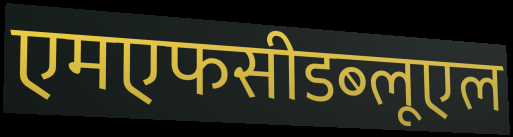
एमएफसीडब्‍लूएल